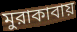
মুরাকাবায়